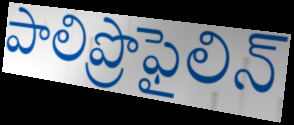
పాలిప్రొఫైలిన్